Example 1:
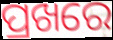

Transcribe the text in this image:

ପ୍ରଖରେ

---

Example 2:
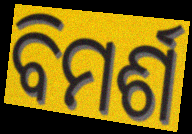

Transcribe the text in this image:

ବିମର୍ଶ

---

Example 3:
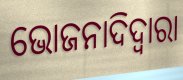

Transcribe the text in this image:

ଭୋଜନାଦିଦ୍ୱାରା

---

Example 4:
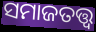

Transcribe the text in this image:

ସମାଜତତ୍ତ୍ୱ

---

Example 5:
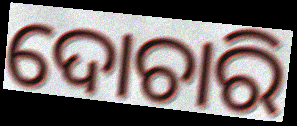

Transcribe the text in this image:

ଦୋଚାରି